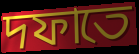
দফাতে